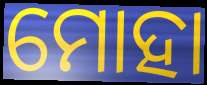
ମୋହା